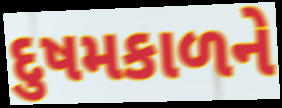
દુષમકાળને